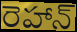
రెహాన్